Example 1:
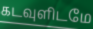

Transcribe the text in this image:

கடவுளிடமே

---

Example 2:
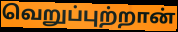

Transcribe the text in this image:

வெறுப்புற்றான்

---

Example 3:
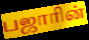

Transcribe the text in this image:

பஜாரின்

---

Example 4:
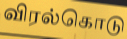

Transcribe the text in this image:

விரல்கொடு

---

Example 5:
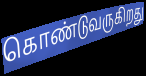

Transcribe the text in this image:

கொண்டுவருகிறது